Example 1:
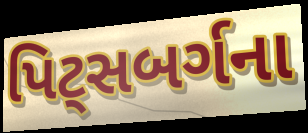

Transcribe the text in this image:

પિટ્સબર્ગના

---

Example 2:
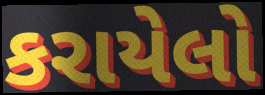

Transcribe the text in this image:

કરાયેલો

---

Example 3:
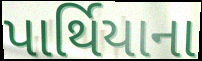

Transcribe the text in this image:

પાર્થિયાના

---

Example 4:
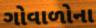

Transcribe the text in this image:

ગોવાળોના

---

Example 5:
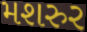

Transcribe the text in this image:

મશરુર